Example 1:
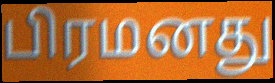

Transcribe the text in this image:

பிரமனது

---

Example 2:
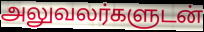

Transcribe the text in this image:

அலுவலர்களுடன்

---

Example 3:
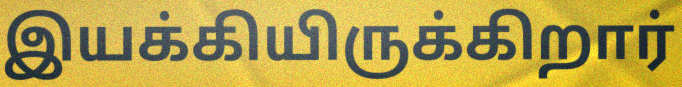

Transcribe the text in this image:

இயக்கியிருக்கிறார்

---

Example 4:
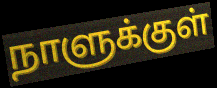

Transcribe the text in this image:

நாளுக்குள்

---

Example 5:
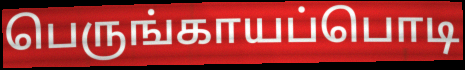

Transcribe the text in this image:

பெருங்காயப்பொடி